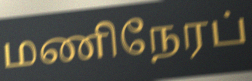
மணிநேரப்